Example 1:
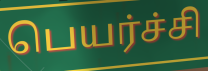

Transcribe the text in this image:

பெயர்ச்சி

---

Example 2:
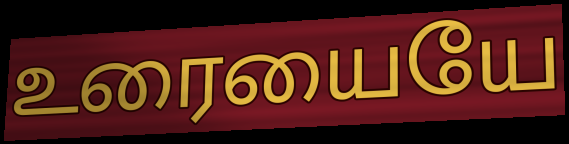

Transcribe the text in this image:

உரையையே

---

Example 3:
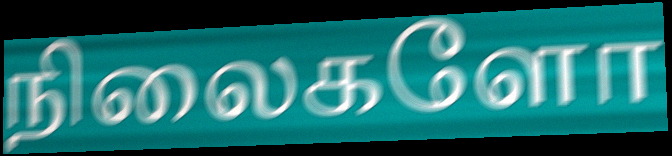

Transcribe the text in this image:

நிலைகளோ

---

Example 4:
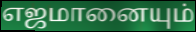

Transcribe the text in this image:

எஜமானையும்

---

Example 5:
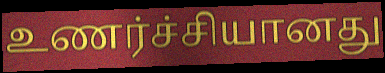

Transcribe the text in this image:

உணர்ச்சியானது